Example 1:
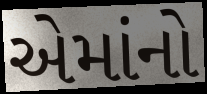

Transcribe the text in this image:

એમાંનો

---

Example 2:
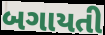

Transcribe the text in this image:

બગાયતી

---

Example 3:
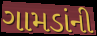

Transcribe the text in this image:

ગામડાંની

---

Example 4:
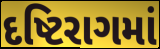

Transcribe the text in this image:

દષ્ટિરાગમાં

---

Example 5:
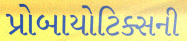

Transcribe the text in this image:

પ્રોબાયોટિક્સની